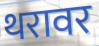
थरावर